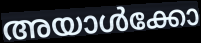
അയാൾക്കോ